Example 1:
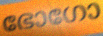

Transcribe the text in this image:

ഭോഗോ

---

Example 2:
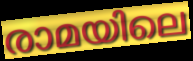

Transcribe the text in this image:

രാമയിലെ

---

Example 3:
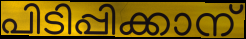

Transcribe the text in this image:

പിടിപ്പിക്കാന്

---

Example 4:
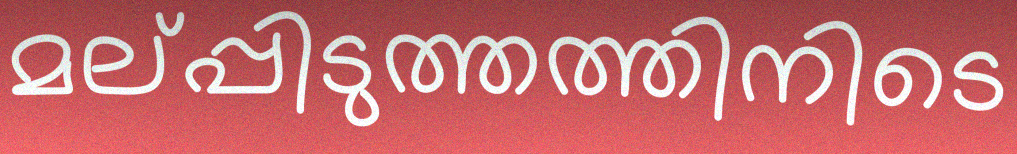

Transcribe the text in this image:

മല്പ്പിടുത്തത്തിനിടെ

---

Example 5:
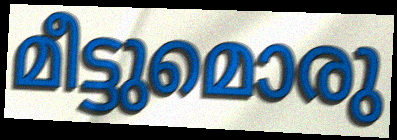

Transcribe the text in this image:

മീട്ടുമൊരു